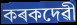
কৰকদেৱী